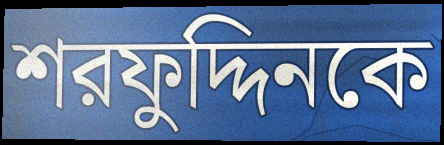
শরফুদ্দিনকে